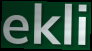
ekli